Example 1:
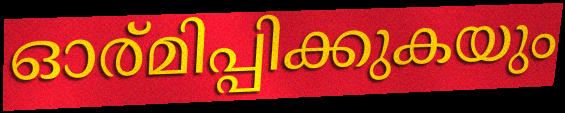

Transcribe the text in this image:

ഓര്മിപ്പിക്കുകയും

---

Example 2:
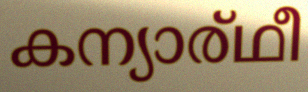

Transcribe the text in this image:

കന്യാര്ഥീ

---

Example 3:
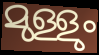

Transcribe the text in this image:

മുള്ളും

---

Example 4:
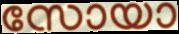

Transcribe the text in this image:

സോയാ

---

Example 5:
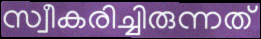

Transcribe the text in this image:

സ്വീകരിച്ചിരുന്നത്